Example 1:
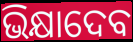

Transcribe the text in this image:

ଭିକ୍ଷାଦେବ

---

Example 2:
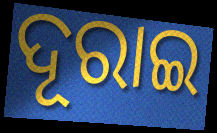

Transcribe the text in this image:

ଦୂରାଇ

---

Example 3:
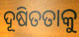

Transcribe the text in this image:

ଦୂଷିତତାକୁ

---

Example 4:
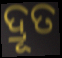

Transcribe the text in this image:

ଦ୍ରୂତ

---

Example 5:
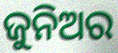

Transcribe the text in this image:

ଜୁନିଅର